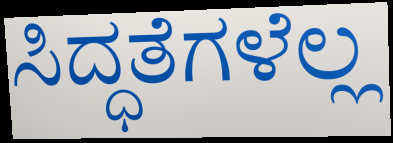
ಸಿದ್ಧತೆಗಳೆಲ್ಲ